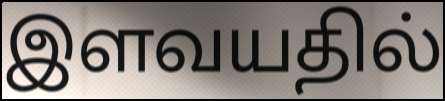
இளவயதில்